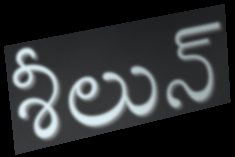
శీలున్